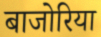
बाजोरिया